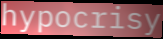
hypocrisy